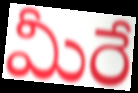
మీరే